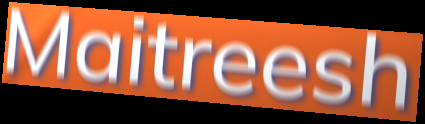
Maitreesh